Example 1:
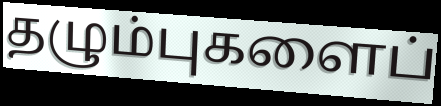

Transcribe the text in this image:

தழும்புகளைப்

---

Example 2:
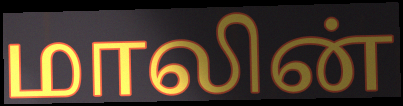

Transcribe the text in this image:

மாலின்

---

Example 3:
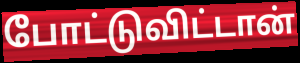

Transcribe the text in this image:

போட்டுவிட்டான்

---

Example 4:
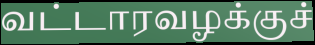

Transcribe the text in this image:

வட்டாரவழக்குச்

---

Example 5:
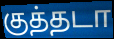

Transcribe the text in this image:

குத்தடா